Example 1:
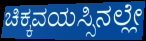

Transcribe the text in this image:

ಚಿಕ್ಕವಯಸ್ಸಿನಲ್ಲೇ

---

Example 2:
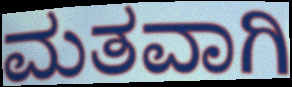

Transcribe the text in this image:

ಮತವಾಗಿ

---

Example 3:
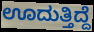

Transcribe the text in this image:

ಊದುತ್ತಿದ್ದೆ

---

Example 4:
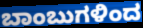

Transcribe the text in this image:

ಬಾಂಬುಗಳಿಂದ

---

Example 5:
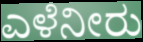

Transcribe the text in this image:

ಎಳೆನೀರು